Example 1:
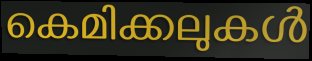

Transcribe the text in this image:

കെമിക്കലുകൾ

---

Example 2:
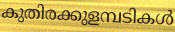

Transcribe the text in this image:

കുതിരക്കുളമ്പടികൾ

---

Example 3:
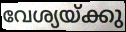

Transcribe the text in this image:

വേശ്യയ്ക്കു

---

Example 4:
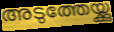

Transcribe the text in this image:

അടുത്തേയ്ക്കു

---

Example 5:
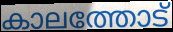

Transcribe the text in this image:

കാലത്തോട്